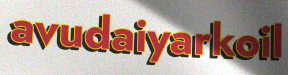
avudaiyarkoil